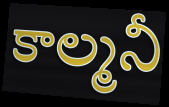
కాల్మనీ